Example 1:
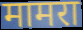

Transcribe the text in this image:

मामरा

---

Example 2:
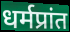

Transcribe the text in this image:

धर्मप्रांत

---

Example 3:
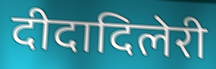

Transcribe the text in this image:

दीदादिलेरी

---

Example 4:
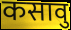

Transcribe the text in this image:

कसावु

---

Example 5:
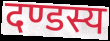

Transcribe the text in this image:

दण्डस्य